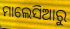
ମାଲେସିଆରୁ